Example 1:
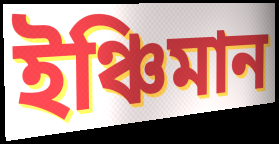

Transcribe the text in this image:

ইঞ্চিমান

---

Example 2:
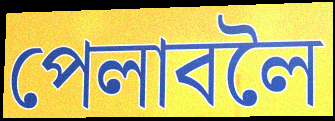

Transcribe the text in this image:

পেলাবলৈ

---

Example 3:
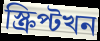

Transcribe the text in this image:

স্ক্ৰিপ্টখন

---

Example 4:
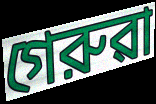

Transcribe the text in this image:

গেৰুৱা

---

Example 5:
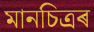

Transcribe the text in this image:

মানচিত্ৰৰ